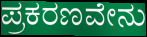
ಪ್ರಕರಣವೇನು